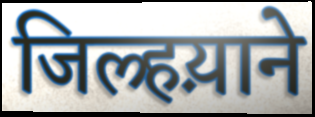
जिल्हय़ाने